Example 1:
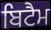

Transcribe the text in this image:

ਬਿਟੈਮ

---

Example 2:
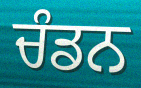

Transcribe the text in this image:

ਚੰਡਨ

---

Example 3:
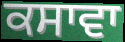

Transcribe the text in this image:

ਕਸਾਵਾ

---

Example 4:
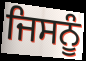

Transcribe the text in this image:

ਜਿਸਨੂੰ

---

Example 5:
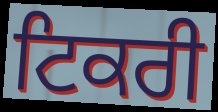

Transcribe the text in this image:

ਟਿਕਰੀ